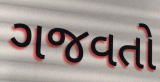
ગજવતો